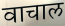
वाचाल